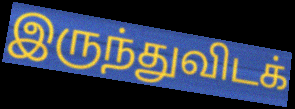
இருந்துவிடக்